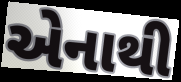
એનાથી